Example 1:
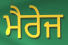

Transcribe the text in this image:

ਮੈਰੇਜ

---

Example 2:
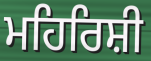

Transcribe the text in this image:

ਮਹਿਰਿਸ਼ੀ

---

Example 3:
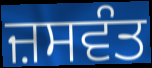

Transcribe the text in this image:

ਜ਼ਸਵੰਤ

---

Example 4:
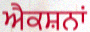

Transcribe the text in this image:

ਐਕਸ਼ਨਾਂ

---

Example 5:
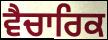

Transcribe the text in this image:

ਵੈਚਾਰਿਕ